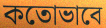
কতোভাবে